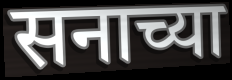
सनाच्या